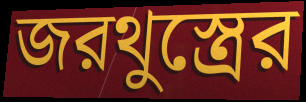
জরথুস্ত্রের